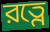
রত্নে